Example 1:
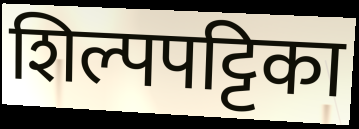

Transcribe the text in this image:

शिल्पपट्टिका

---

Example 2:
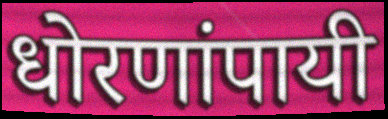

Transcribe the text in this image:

धोरणांपायी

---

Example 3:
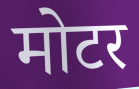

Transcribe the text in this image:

मोटर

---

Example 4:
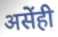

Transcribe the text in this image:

असेंही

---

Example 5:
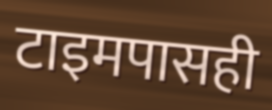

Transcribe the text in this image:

टाइमपासही